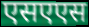
एसएएस